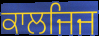
ਕਾਲਜਿਜ